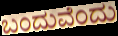
ಬಂದುವೆಂದು